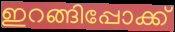
ഇറങ്ങിപ്പോക്ക്